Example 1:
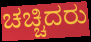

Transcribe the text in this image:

ಚಚ್ಚಿದರು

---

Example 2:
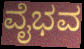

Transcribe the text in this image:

ವೈಭವ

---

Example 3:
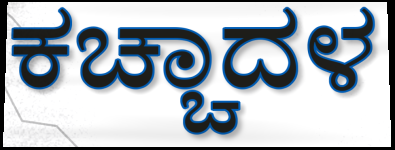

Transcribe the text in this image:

ಕಚ್ಚಾದಳ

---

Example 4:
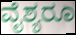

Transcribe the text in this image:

ವೈಶ್ಯರೂ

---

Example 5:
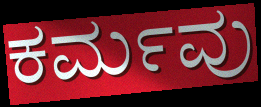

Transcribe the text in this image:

ಕರ್ಮವು